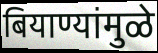
बियाण्यांमुळे